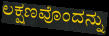
ಲಕ್ಷಣವೊಂದನ್ನು